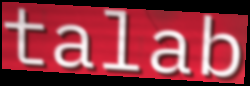
talab